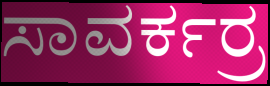
ಸಾವರ್ಕರ್ರ